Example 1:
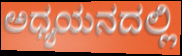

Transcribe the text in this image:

ಅಧ್ಯಯನದಲ್ಲಿ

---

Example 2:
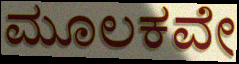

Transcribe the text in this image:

ಮೂಲಕವೇ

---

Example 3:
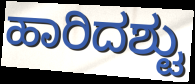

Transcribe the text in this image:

ಹಾರಿದಶ್ಟು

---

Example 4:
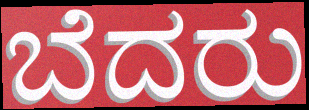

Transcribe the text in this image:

ಬೆದರು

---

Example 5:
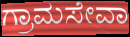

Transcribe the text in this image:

ಗ್ರಾಮಸೇವಾ